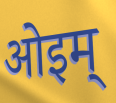
ओइम्